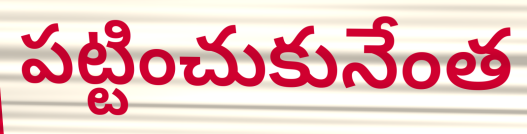
పట్టించుకునేంత